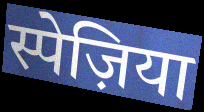
स्पेज़िया